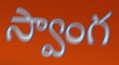
స్వాంగ